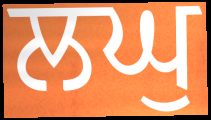
ਲਘੁ